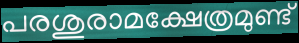
പരശുരാമക്ഷേത്രമുണ്ട്